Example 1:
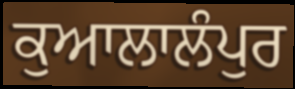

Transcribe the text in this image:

ਕੁਆਲਾਲੰਪੁਰ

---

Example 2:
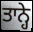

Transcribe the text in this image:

ਤਾਨ੍ਹੇ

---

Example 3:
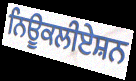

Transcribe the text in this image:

ਨਿਊਕਲੀਏਸ਼ਨ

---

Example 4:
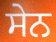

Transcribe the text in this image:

ਸੇਨ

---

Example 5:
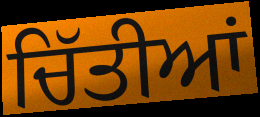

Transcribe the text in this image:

ਚਿੱਤੀਆਂ